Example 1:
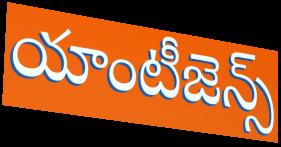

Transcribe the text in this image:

యాంటీజెన్స్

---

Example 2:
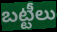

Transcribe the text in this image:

బట్టీలు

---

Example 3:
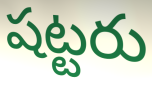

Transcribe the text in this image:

షట్టరు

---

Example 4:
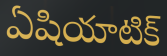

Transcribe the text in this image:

ఏషియాటిక్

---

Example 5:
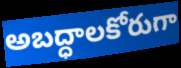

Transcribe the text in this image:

అబద్ధాలకోరుగా